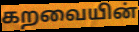
கறவையின்